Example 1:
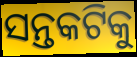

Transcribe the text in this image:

ସନ୍ତକଟିକୁ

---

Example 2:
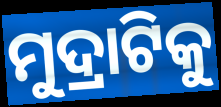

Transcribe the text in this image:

ମୁଦ୍ରାଟିକୁ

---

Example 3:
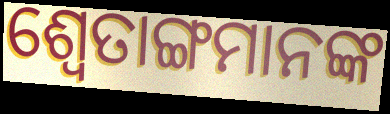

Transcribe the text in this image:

ଶ୍ଵେତାଙ୍ଗମାନଙ୍କ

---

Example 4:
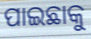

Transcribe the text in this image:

ପାଇଛାକୁ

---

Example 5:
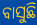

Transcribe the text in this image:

ବାସୁଛି